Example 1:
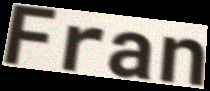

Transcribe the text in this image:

Fran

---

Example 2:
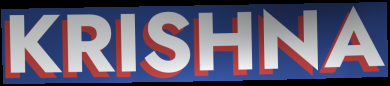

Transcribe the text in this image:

KRISHNA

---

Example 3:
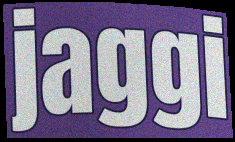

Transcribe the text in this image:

jaggi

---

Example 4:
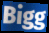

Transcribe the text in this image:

Bigg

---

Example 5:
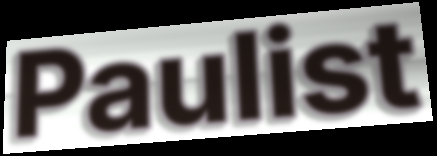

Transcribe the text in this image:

Paulist